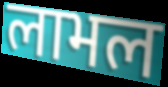
लाभल